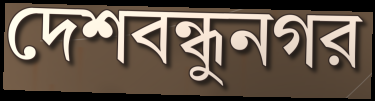
দেশবন্ধুনগর